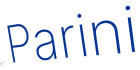
Parini